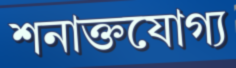
শনাক্তযোগ্য